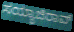
ಸಯ್ಯಾಜಿರಾವ್